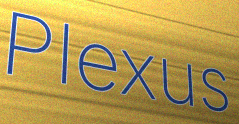
Plexus